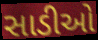
સાડીઓ